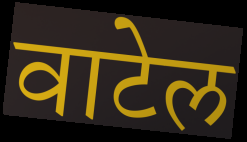
वाटेल